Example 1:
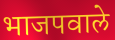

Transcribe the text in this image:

भाजपवाले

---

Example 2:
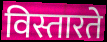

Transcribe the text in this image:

विस्तारते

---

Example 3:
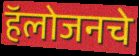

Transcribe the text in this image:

हॅलोजनचे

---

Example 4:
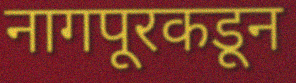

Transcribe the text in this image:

नागपूरकडून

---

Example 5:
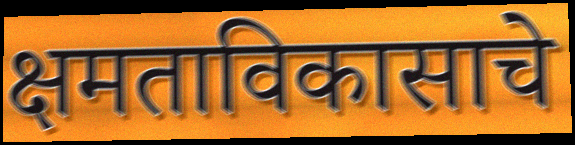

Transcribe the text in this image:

क्षमताविकासाचे